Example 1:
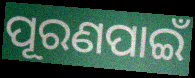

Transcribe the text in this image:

ପୂରଣପାଇଁ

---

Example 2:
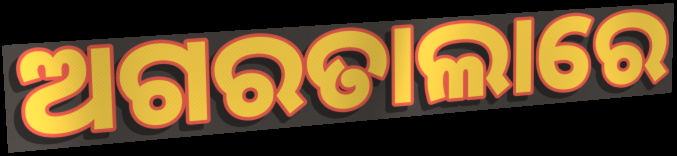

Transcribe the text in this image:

ଅଗରତାଲାରେ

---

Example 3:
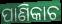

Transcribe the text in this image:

ପାଣିକାଚ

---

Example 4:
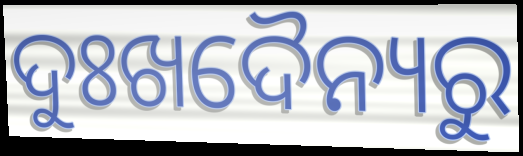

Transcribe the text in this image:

ଦୁଃଖଦୈନ୍ୟରୁ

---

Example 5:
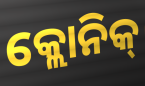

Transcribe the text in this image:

କ୍ଲୋନିକ୍